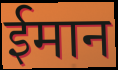
ईमान